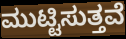
ಮುಟ್ಟಿಸುತ್ತವೆ